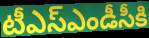
టీఎస్ఎండీసీకి